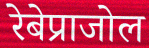
रेबेप्राजोल